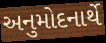
અનુમોદનાર્થે